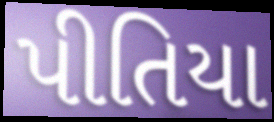
પીતિયા